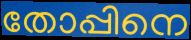
തോപ്പിനെ